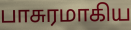
பாசுரமாகிய